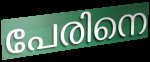
പേരിനെ